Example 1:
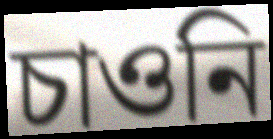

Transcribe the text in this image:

চাওনি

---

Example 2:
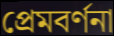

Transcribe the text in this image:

প্রেমবর্ণনা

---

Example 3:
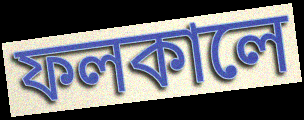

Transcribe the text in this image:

ফলকালে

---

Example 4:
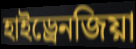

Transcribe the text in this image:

হাইড্রেনজিয়া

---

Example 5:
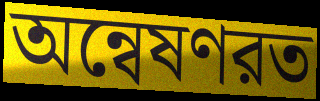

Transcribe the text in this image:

অন্বেষণরত